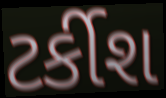
ટર્કીશ